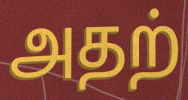
அதற்